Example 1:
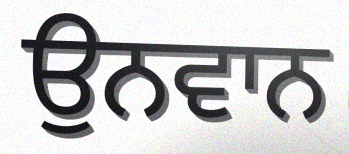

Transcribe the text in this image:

ਉਨਵਾਨ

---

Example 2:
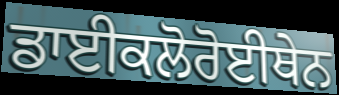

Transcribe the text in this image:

ਡਾਈਕਲੋਰੋਈਥੇਨ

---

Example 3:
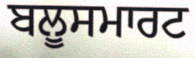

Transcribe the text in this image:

ਬਲੂਸਮਾਰਟ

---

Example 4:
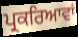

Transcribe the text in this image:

ਪ੍ਰਕਰਿਆਵਾਂ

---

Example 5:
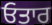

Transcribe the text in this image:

ਓਤਾਰ